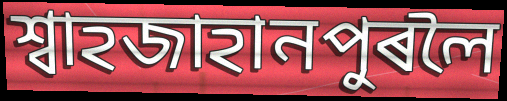
শ্বাহজাহানপুৰলৈ